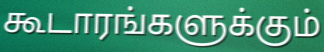
கூடாரங்களுக்கும்